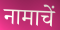
नामाचें